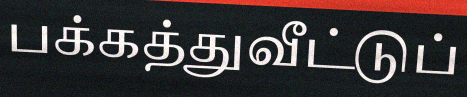
பக்கத்துவீட்டுப்